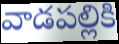
వాడపల్లికి